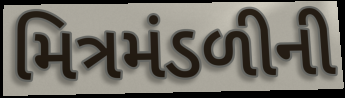
મિત્રમંડળીની